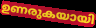
ഉണരുകയായി